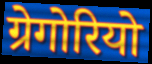
ग्रेगोरियो